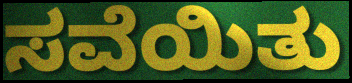
ಸವೆಯಿತು